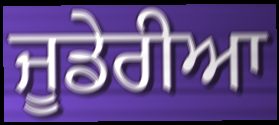
ਜੂਡੇਰੀਆ